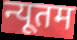
न्यूतम